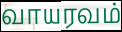
வாயரவம்